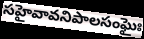
సహైవావనిపాలసంఘైః